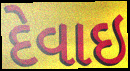
દેવાઇ